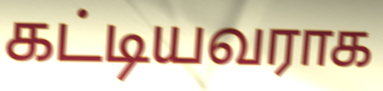
கட்டியவராக